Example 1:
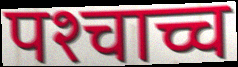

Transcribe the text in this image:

पश्चाच्च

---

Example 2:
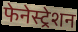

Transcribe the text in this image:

फेनेस्ट्रेशन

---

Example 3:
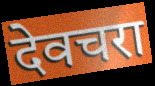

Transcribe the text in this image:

देवचरा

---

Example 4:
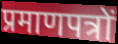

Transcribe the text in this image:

प्रमाणपत्रों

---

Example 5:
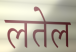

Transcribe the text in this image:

लतेल